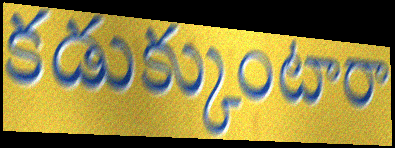
కడుక్కుంటారా